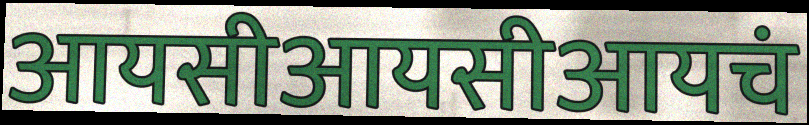
आयसीआयसीआयचं